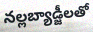
నల్లబ్యాడ్జీలతో